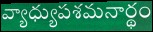
వ్యాధ్యుపశమనార్థం